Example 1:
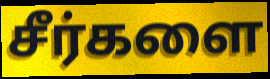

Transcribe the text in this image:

சீர்களை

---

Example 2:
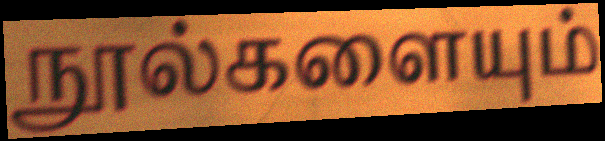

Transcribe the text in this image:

நூல்களையும்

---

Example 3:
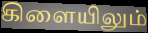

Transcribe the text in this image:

கிளையிலும்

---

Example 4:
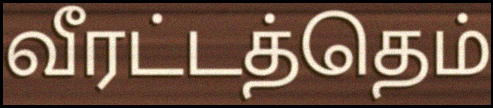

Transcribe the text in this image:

வீரட்டத்தெம்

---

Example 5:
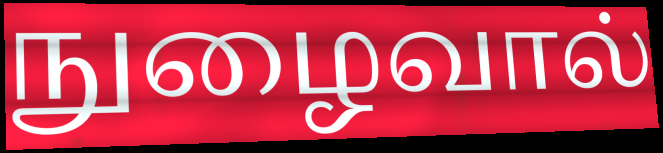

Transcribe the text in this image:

நுழைவால்